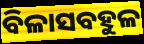
ବିଳାସବହୁଳ